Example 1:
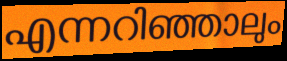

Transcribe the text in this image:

എന്നറിഞ്ഞാലും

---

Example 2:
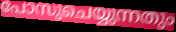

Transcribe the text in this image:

പോസുചെയ്യുന്നതും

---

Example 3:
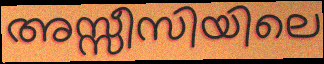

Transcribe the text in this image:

അസ്സീസിയിലെ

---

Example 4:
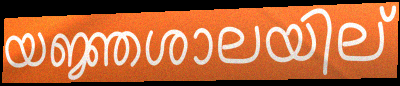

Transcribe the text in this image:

യജ്ഞശാലയില്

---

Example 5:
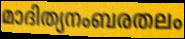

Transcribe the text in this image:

മാദിത്യനംബരതലം